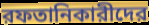
রফতানিকারীদের